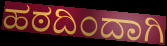
ಹಠದಿಂದಾಗಿ